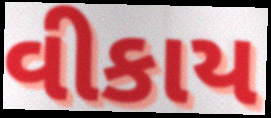
વીકાય